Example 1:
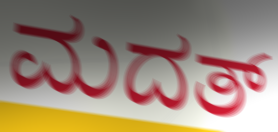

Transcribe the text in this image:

ಮದತ್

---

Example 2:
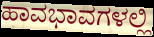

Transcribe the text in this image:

ಹಾವಭಾವಗಳಲ್ಲಿ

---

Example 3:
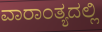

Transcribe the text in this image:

ವಾರಾಂತ್ಯದಲ್ಲಿ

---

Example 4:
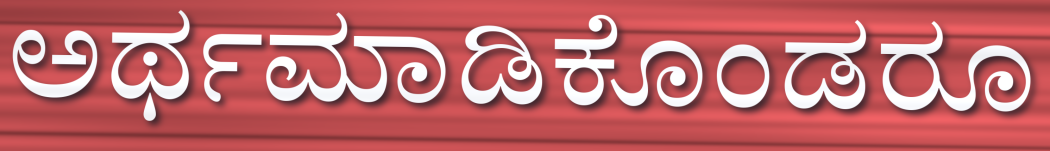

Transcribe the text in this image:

ಅರ್ಥಮಾಡಿಕೊಂಡರೂ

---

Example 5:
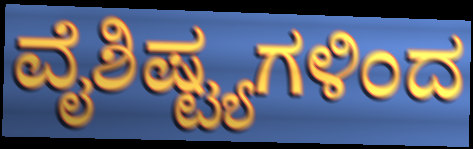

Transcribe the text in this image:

ವೈಶಿಷ್ಟ್ಯಗಳಿಂದ